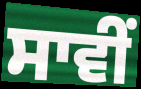
ਸਾਵੀਂ